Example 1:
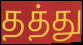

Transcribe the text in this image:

தத்து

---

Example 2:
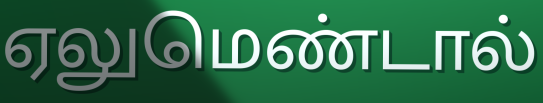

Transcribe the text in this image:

ஏலுமெண்டால்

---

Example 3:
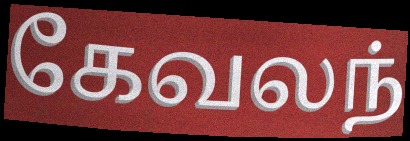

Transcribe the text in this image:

கேவலந்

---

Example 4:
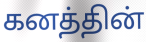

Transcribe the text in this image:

கனத்தின்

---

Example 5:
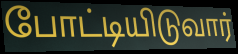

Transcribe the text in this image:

போட்டியிடுவார்